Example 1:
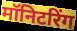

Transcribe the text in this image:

मॉनिटरिंग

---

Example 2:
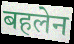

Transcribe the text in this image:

बहलेन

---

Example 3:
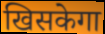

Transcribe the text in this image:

खिसकेगा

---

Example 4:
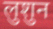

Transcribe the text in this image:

लुशुन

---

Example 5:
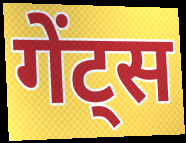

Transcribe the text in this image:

गेंट्स